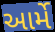
આર્મે